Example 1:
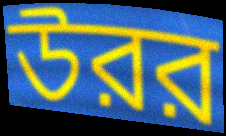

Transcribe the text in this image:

উরর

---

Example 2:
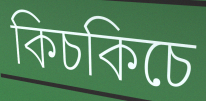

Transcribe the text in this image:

কিচকিচে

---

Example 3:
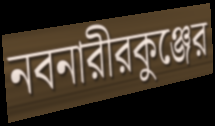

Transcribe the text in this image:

নবনারীরকুঞ্জের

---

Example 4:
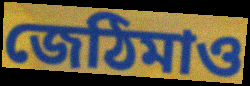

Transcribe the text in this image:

জেঠিমাও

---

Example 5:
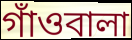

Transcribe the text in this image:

গাঁওবালা